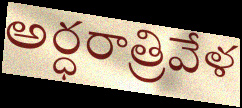
అర్ధరాత్రివేళ